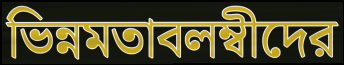
ভিন্নমতাবলম্বীদের